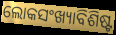
ଲୋକସଂଖ୍ୟାବିଶିଷ୍ଟ